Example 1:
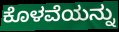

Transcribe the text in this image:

ಕೊಳವೆಯನ್ನು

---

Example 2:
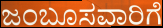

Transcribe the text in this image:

ಜಂಬೂಸವಾರಿಗೆ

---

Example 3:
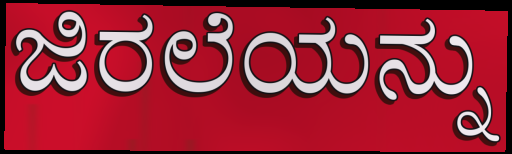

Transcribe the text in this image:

ಜಿರಲೆಯನ್ನು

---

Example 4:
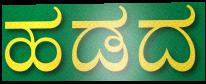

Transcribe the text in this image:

ಹಡದ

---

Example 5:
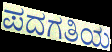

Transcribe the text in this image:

ಪದಗತಿಯ